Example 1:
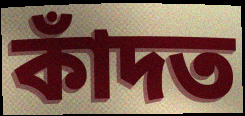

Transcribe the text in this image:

কাঁদত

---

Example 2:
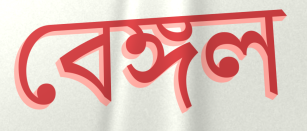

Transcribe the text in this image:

বেঙ্গল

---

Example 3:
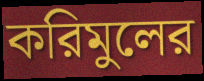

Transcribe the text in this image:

করিমুলের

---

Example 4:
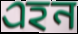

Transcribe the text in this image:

এহন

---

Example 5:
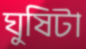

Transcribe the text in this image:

ঘুষিটা